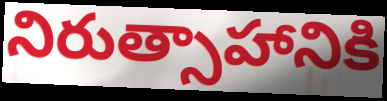
నిరుత్సాహానికి